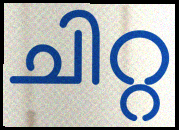
ചിറ്റ